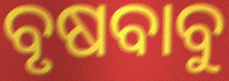
ବୃଷବାବୁ